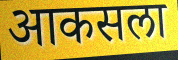
आकसला